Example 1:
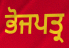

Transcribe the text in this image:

ਭੋਜਪਤ੍ਰ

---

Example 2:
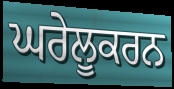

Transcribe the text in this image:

ਘਰੇਲੂਕਰਨ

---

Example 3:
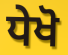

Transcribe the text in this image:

ਧੇਖੋ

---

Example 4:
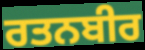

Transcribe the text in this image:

ਰਤਨਬੀਰ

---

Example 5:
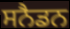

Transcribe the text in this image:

ਸਨੈਡਨ